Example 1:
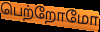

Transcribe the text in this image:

பெற்றோமோ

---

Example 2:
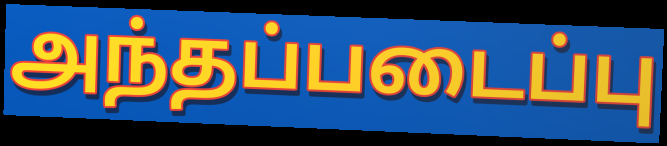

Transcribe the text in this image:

அந்தப்படைப்பு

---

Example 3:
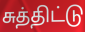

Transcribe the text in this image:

சுத்திட்டு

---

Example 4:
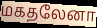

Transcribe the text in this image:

மகதலேனா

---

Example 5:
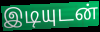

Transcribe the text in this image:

இடியுடன்